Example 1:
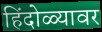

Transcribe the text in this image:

हिंदोळ्यावर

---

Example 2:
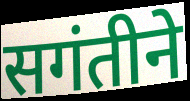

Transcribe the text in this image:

सगंतीने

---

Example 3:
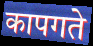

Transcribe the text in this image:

कापगते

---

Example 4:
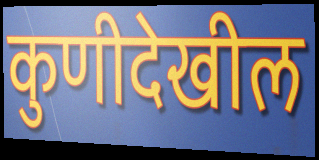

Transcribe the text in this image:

कुणीदेखील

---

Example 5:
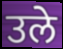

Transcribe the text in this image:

उले